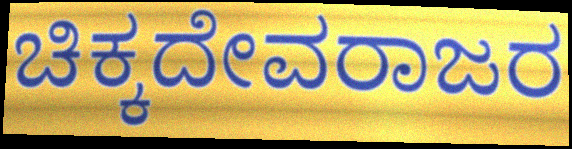
ಚಿಕ್ಕದೇವರಾಜರ